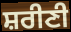
ਸ਼ਰੀਣੀ